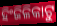
ହିଂଜିଳିକାଟୁ